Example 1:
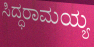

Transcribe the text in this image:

ಸಿದ್ಧರಾಮಯ್ಯ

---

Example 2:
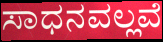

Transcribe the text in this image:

ಸಾಧನವಲ್ಲವೆ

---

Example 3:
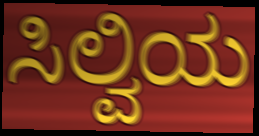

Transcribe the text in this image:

ಸಿಲ್ವಿಯ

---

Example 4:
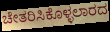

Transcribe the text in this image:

ಚೇತರಿಸಿಕೊಳ್ಳಲಾರದ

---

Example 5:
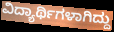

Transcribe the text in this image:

ವಿದ್ಯಾರ್ಥಿಗಳಾಗಿದ್ದು